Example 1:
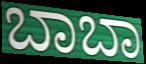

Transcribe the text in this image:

ಬಾಬಾ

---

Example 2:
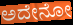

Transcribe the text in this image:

ಅದೇನೋ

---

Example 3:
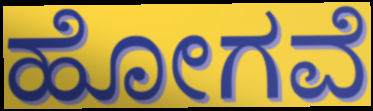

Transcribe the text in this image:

ಹೋಗವೆ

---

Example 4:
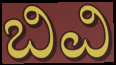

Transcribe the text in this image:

ಬಿವಿ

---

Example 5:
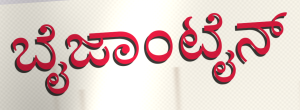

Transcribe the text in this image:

ಬೈಜಾಂಟೈನ್